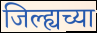
जिल्ह्यच्या